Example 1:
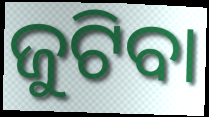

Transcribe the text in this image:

ଜୁଟିବା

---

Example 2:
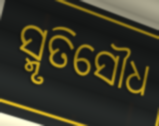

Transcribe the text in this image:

ସ୍ମୃତିସୌଧ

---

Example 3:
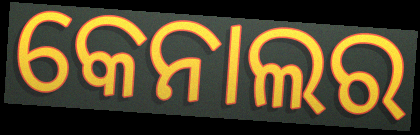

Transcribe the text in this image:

କେନାଲର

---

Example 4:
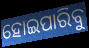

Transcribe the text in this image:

ହୋଇପାରିବୁ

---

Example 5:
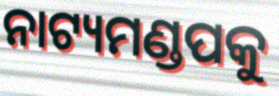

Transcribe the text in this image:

ନାଟ୍ୟମଣ୍ଡପକୁ